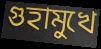
গুহামুখে